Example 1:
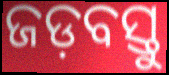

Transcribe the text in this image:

ଜଡ଼ବସ୍ତୁ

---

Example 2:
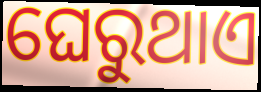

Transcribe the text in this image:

ଘେରୁଥାଏ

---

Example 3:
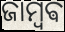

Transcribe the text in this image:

ଜାମ୍ବଵ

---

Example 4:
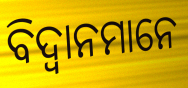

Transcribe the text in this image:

ବିଦ୍ଵାନମାନେ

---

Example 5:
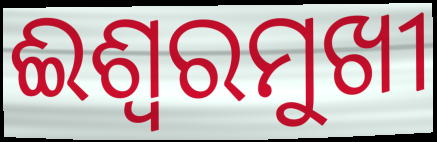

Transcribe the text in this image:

ଈଶ୍ୱରମୁଖୀ